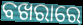
ବଖରାରେ